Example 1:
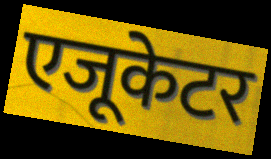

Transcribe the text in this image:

एजूकेटर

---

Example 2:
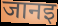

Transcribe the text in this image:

जानइ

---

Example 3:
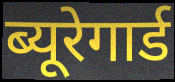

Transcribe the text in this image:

ब्यूरेगार्ड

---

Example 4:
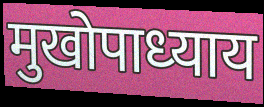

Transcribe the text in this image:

मुखोपाध्‍याय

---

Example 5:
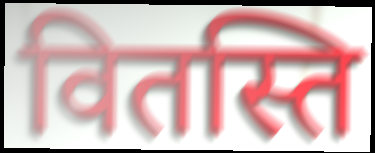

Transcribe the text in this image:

वितस्ति